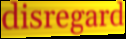
disregard